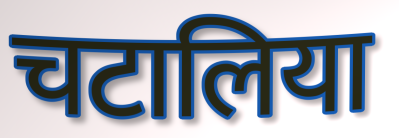
चटालिया